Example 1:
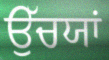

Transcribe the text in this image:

ਉੱਚਯਾਂ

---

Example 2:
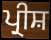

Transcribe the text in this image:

ਪ੍ਰੀਸ਼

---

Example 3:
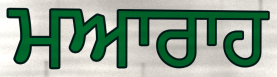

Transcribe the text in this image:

ਮਆਰਾਹ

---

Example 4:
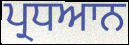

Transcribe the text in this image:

ਪ੍ਰਧਆਨ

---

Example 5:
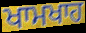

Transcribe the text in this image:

ਖਾਮਖਾਹ